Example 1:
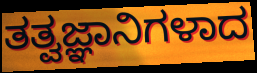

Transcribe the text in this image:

ತತ್ವಜ್ಞಾನಿಗಳಾದ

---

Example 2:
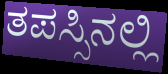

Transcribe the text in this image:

ತಪಸ್ಸಿನಲ್ಲಿ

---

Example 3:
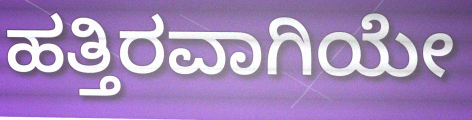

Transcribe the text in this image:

ಹತ್ತಿರವಾಗಿಯೇ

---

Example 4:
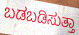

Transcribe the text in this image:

ಬಡಬಡಿಸುತ್ತಾ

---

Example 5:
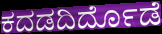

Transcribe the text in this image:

ಕದಡದಿರ್ದೊಡೆ